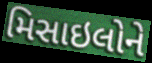
મિસાઇલોને